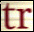
tr